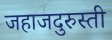
जहाजदुरुस्ती